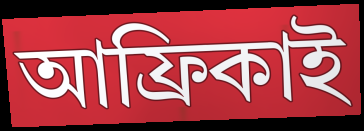
আফ্রিকাই